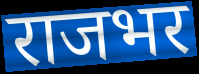
राजभर